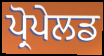
ਪ੍ਰੋਪੇਲਡ